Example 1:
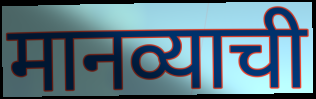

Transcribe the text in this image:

मानव्याची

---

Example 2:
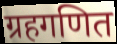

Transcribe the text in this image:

ग्रहगणित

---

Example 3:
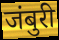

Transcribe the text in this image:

जंबुरी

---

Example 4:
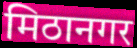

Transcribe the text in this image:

मिठानगर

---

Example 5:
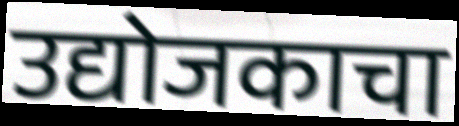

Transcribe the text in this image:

उद्योजकाचा